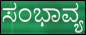
ಸಂಭಾವ್ಯ